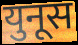
युनूस